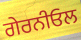
ਗੇਰਨੀਓਲ